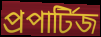
প্রপার্টিজ